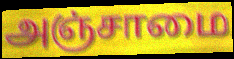
அஞ்சாமை